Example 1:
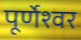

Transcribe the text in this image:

पूर्णेश्वर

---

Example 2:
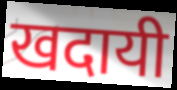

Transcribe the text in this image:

खदायी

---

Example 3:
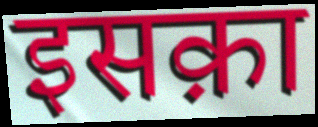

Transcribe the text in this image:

इसक़ा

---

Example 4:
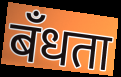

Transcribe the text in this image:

बँधता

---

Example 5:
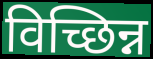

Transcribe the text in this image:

विच्छिन्न